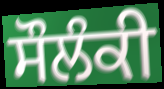
ਸੌਲੰਕੀ